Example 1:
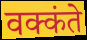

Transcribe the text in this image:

वक्कंते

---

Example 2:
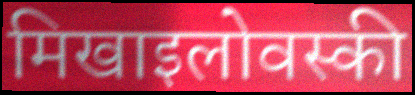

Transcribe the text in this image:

मिखाइलोवस्की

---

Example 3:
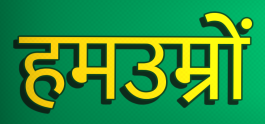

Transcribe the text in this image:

हमउम्रों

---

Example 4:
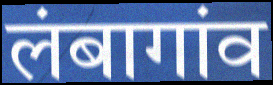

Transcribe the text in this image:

लंबागांव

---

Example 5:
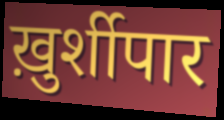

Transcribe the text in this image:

ख़ुर्शीपार